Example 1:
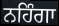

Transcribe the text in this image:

ਨਹਿੰਗਾ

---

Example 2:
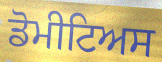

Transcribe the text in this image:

ਡੋਮੀਟਿਅਸ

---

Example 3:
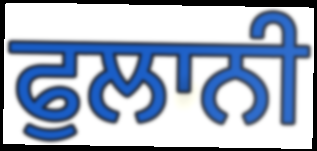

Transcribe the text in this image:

ਫੁਲਾਨੀ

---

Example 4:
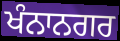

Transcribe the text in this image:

ਖੰਨਾਨਗਰ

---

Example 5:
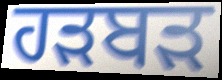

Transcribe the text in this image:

ਹੜਬੜ